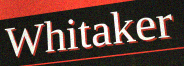
Whitaker